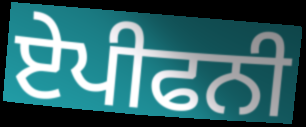
ਏਪੀਫਨੀ